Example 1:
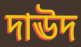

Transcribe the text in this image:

দাঊদ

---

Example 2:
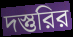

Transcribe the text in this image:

দস্তুরির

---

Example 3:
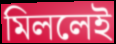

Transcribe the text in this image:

মিললেই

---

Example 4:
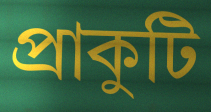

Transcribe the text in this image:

প্রাকুটি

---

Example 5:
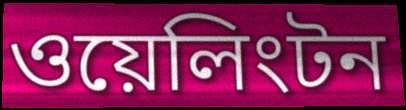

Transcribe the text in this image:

ওয়েলিংটন